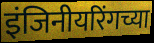
इंजिनीयरिंगच्या